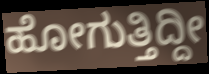
ಹೋಗುತ್ತಿದ್ದೀ